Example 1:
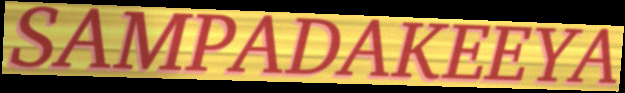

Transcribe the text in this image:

SAMPADAKEEYA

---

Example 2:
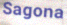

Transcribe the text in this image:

Sagona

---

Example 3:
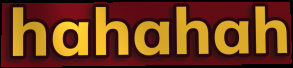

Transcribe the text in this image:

hahahah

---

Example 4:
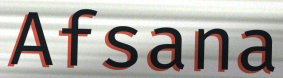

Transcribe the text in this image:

Afsana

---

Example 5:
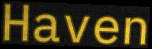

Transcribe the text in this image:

Haven